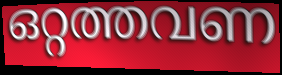
ഒറ്റത്തവണ